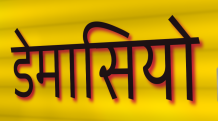
डेमासियो